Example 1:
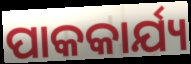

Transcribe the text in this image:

ପାକକାର୍ଯ୍ୟ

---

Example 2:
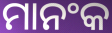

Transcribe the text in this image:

ମାନଂକ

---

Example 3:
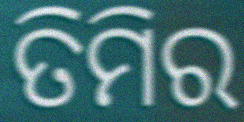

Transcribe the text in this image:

ତିମିର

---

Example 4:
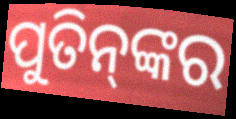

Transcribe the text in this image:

ପୁତିନ୍‌ଙ୍କର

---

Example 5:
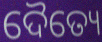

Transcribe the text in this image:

ଦୈତ୍ୟେ